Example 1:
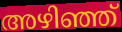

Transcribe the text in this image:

അഴിഞ്ഞ്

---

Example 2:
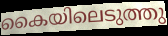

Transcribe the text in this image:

കൈയിലെടുത്തു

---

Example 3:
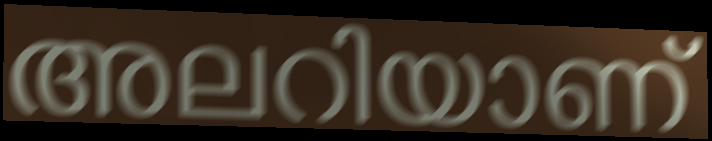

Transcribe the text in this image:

അലറിയാണ്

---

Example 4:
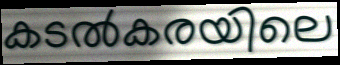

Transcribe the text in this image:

കടൽകരയിലെ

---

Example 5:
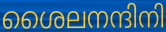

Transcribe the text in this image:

ശൈലനന്ദിനി